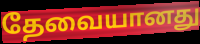
தேவையானது